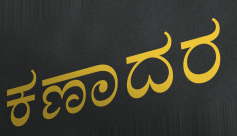
ಕಣಾದರ